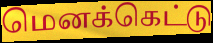
மெனக்கெட்டு